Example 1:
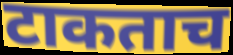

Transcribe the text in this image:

टाकताच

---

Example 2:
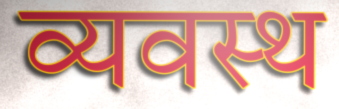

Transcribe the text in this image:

व्यवस्थ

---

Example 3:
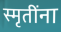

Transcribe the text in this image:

स्मृतींना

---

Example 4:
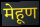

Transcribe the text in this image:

मेहूण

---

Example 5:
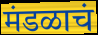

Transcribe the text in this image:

मंडळाचं